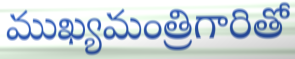
ముఖ్యమంత్రిగారితో